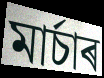
মাৰ্চাৰ